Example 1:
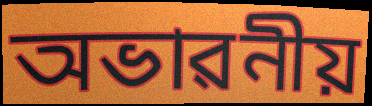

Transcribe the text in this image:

অভাৱনীয়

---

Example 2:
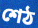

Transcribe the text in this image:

শেঠ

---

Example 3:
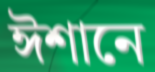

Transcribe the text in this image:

ঈশানে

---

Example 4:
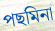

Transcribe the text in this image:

পছমিনা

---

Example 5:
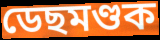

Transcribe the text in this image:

ডেছমণ্ডক